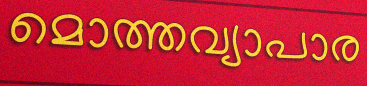
മൊത്തവ്യാപാര